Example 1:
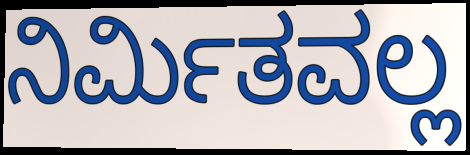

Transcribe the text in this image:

ನಿರ್ಮಿತವಲ್ಲ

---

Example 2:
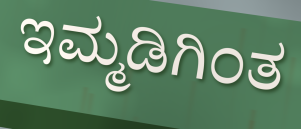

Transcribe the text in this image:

ಇಮ್ಮಡಿಗಿಂತ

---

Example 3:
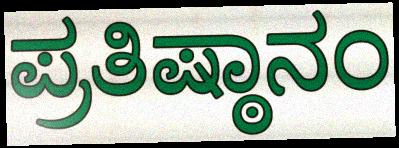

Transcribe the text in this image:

ಪ್ರತಿಷ್ಠಾನಂ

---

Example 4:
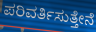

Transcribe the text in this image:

ಪರಿವರ್ತಿಸುತ್ತೇನೆ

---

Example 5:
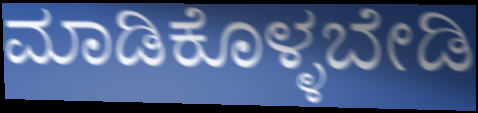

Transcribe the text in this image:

ಮಾಡಿಕೊಳ್ಳಬೇಡಿ